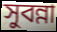
সুবন্না